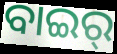
ବାଇର୍